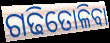
ଗଢିତୋଳିବା